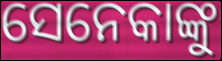
ସେନେକାଙ୍କୁ